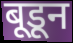
बूडून